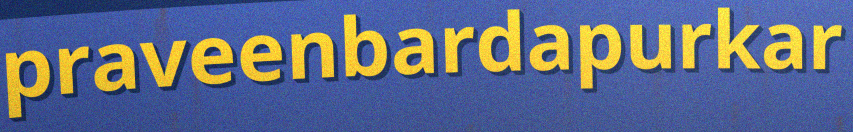
praveenbardapurkar